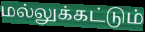
மல்லுக்கட்டும்